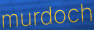
murdoch